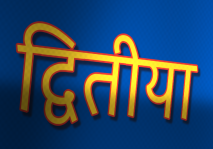
द्वितीया